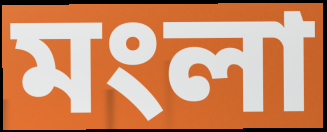
মংলা